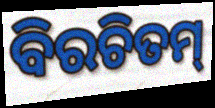
ବିରଚିତମ୍